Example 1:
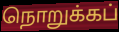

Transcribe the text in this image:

நொறுக்கப்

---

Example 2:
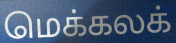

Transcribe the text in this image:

மெக்கலக்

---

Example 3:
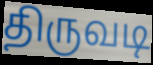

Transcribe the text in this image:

திருவடி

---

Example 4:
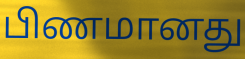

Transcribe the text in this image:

பிணமானது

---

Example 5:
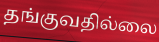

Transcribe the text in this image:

தங்குவதில்லை